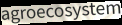
agroecosystem